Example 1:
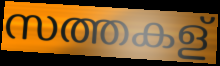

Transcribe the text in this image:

സത്തകള്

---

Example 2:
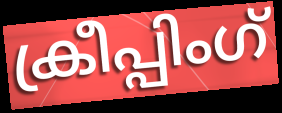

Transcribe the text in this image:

ക്രീപ്പിംഗ്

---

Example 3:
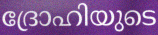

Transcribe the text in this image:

ദ്രോഹിയുടെ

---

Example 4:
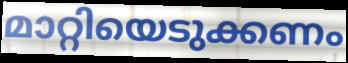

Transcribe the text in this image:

മാറ്റിയെടുക്കണം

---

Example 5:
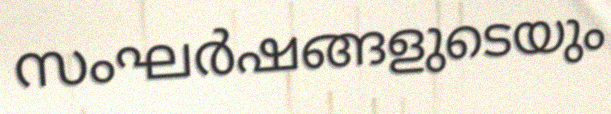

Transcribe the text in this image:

സംഘർഷങ്ങളുടെയും